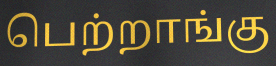
பெற்றாங்கு